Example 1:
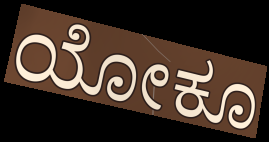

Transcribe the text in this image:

ಯೋಕೂ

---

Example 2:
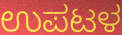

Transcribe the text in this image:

ಉಪಟಳ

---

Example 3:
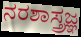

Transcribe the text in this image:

ನರಶಾಸ್ತ್ರಜ್ಞ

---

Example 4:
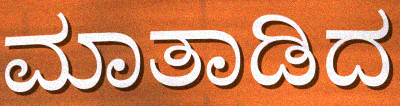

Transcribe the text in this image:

ಮಾತಾಡಿದ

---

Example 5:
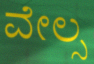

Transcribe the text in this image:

ವೇಲ್ಸ